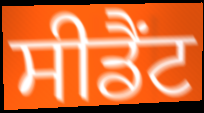
ਸੀਡੈਂਟ